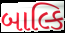
બાલ્કિ